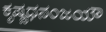
ಕೃಷ್ಣಧನಂಜಯೌ